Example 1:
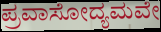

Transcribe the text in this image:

ಪ್ರವಾಸೋದ್ಯಮವೇ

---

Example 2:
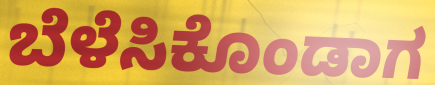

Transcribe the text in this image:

ಬೆಳೆಸಿಕೊಂಡಾಗ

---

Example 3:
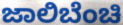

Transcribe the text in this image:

ಜಾಲಿಬೆಂಚಿ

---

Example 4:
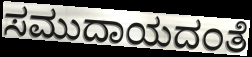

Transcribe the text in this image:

ಸಮುದಾಯದಂತೆ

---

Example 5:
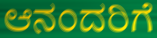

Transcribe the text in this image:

ಆನಂದರಿಗೆ